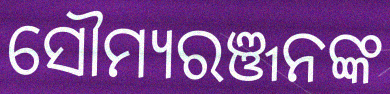
ସୌମ୍ୟରଞ୍ଜନଙ୍କ